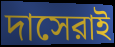
দাসেরাই